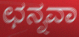
ಛನ್ನವಾ